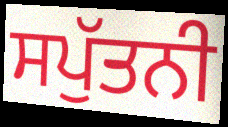
ਸਪੁੱਤਨੀ